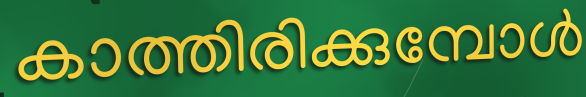
കാത്തിരിക്കുമ്പോൾ